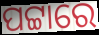
ପଟ୍ଟାରେ